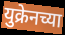
युक्रेनच्या